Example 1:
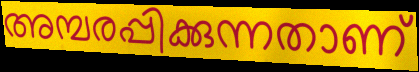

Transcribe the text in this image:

അമ്പരപ്പിക്കുന്നതാണ്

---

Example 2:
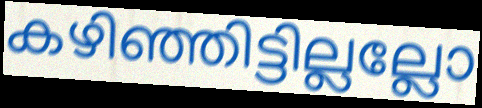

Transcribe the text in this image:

കഴിഞ്ഞിട്ടില്ലല്ലോ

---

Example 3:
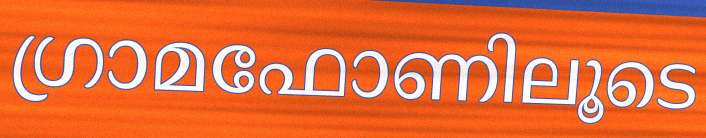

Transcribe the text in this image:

ഗ്രാമഫോണിലൂടെ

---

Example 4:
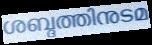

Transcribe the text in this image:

ശബ്ദത്തിനുടമ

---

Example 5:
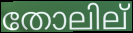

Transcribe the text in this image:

തോലില്